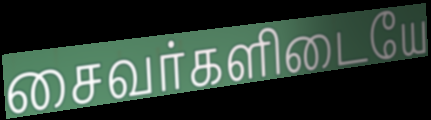
சைவர்களிடையே